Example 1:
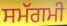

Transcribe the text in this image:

ਸਮੱਗਮੀ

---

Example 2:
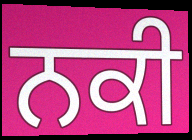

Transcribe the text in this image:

ਨਕੀ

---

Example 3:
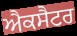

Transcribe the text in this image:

ਐਕਸੈਟਰ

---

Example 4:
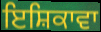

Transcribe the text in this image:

ਇਸ਼ਿਕਾਵਾ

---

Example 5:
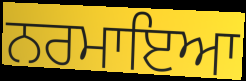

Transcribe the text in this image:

ਨਰਮਾਇਆ